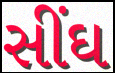
સીંઘ